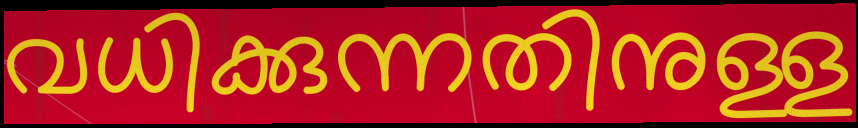
വധിക്കുന്നതിനുള്ള